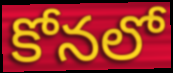
కోనలో